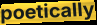
poetically